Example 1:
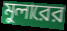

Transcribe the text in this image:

মুলারের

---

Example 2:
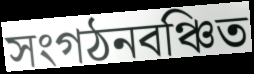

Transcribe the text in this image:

সংগঠনবঞ্চিত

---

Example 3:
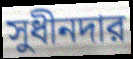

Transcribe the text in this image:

সুধীনদার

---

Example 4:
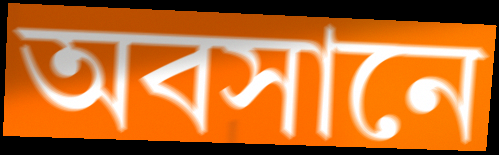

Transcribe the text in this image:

অবসানে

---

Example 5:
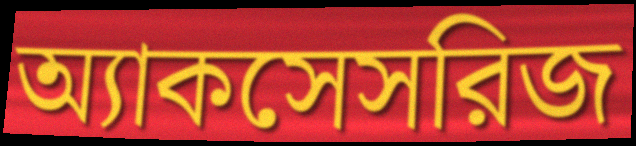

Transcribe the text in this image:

অ্যাকসেসরিজ